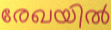
രേഖയിൽ